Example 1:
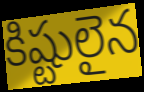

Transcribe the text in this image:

కిష్టులైన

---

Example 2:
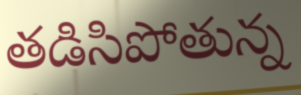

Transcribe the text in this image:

తడిసిపోతున్న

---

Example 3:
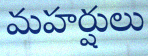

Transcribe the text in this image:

మహర్షులు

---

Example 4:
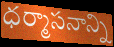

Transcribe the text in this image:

ధర్మాసనాన్ని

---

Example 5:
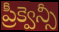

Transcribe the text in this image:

ప్రీక్వెన్సీ